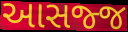
આસજ્જ